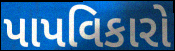
પાપવિકારો